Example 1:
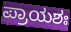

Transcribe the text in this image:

ಪ್ರಾಯಶಃ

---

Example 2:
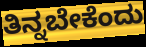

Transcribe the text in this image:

ತಿನ್ನಬೇಕೆಂದು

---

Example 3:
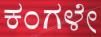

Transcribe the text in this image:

ಕಂಗಳೇ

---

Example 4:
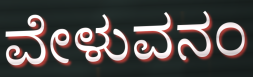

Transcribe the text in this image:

ವೇಳುವನಂ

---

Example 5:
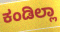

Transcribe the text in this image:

ಕಂಡಿಲ್ಲಾ